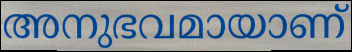
അനുഭവമായാണ്